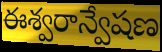
ఈశ్వరాన్వేషణ